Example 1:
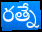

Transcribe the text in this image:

రత్నే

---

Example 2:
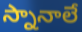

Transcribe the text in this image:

స్నానాలే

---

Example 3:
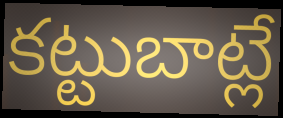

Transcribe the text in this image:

కట్టుబాట్లే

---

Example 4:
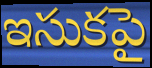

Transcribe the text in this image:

ఇసుకపై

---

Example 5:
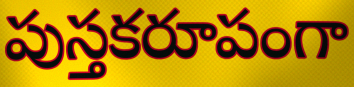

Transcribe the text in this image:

పుస్తకరూపంగా